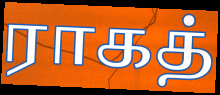
ராகத்